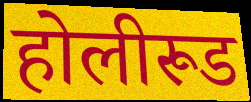
होलीरूड